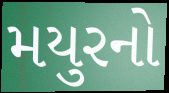
મયુરનો